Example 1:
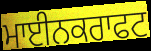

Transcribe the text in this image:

ਮਾਈਨਕਰਾਫਟ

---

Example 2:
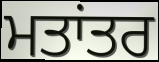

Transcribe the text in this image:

ਮਤਾਂਤਰ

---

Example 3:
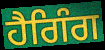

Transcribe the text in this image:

ਹੈਗਿੰਗ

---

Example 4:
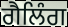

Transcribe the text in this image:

ਗੈਲਿੰਗ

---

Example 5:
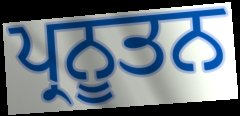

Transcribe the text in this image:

ਪ੍ਰਨੂਤਨ